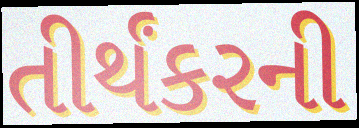
તીર્થંકરની